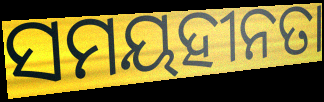
ସମୟହୀନତା